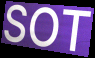
SOT